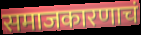
समाजकारणाचं